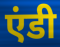
एंडी